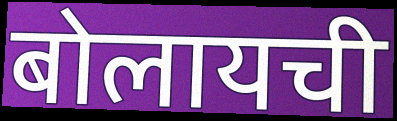
बोलायची